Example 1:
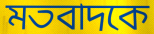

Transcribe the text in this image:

মতবাদকে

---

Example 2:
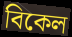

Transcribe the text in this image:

বিকেল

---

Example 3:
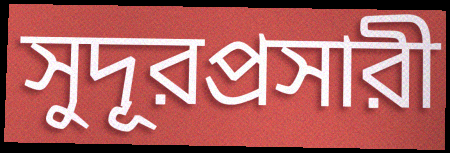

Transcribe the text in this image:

সুদূরপ্রসারী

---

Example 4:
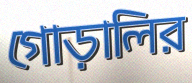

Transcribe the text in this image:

গোড়ালির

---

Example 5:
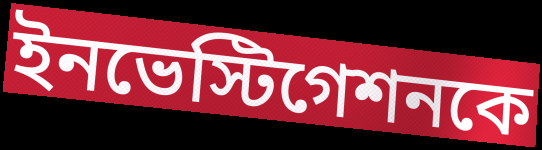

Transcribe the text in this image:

ইনভেস্টিগেশনকে